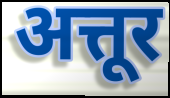
अत्तूर